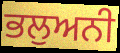
ਭਲੁਅਨੀ